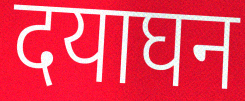
दयाघन